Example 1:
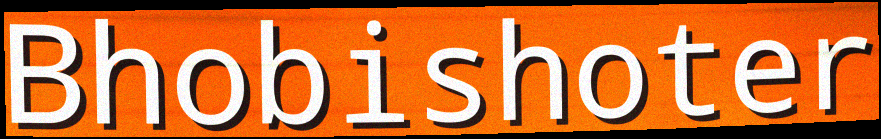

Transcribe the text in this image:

Bhobishoter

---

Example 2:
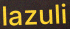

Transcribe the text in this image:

lazuli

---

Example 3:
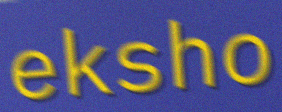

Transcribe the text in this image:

eksho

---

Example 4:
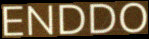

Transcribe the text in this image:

ENDDO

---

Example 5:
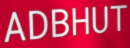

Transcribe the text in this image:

ADBHUT